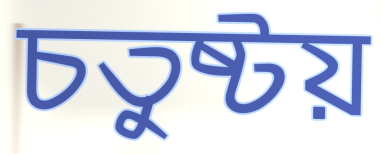
চতুষ্টয়